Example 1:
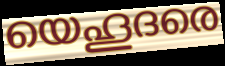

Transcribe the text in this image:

യെഹൂദരെ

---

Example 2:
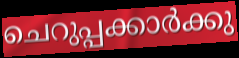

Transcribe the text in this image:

ചെറുപ്പക്കാർക്കു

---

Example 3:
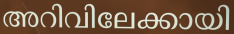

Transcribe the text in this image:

അറിവിലേക്കായി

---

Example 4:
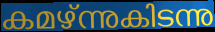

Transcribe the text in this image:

കമഴ്ന്നുകിടന്നു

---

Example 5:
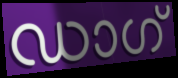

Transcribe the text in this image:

ഡാഗ്